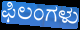
ಫಿಲಂಗಳು